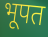
भूपत